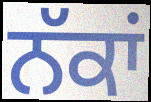
ਨੱਕਾਂ